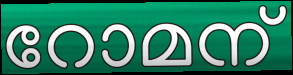
റോമന്